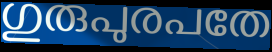
ഗുരുപുരപതേ